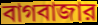
বাগবাজার